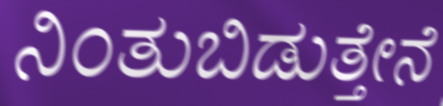
ನಿಂತುಬಿಡುತ್ತೇನೆ